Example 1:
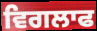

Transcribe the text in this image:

ਵਿਗਲਾਫ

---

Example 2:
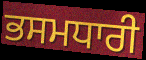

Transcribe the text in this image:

ਭਸਮਧਾਰੀ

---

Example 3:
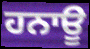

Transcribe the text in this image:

ਹਨਾਊ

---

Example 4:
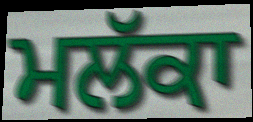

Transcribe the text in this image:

ਮਲੱਕਾ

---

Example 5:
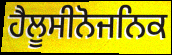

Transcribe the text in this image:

ਹੈਲੂਸੀਨੋਜਨਿਕ